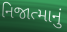
નિજાત્માનું